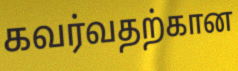
கவர்வதற்கான